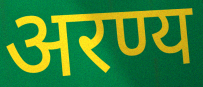
अरण्य